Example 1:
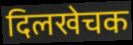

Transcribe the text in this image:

दिलखेचक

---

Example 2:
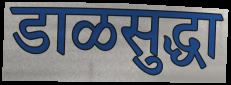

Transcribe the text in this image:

डाळसुद्धा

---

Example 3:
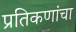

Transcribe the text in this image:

प्रतिकणांचा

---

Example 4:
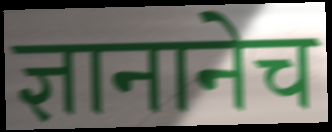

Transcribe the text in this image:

ज्ञानानेच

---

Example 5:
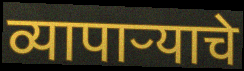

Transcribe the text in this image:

व्यापाऱ्याचे